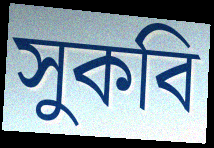
সুকবি